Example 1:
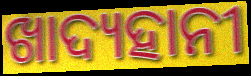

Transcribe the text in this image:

ଖାଦ୍ୟହାନୀ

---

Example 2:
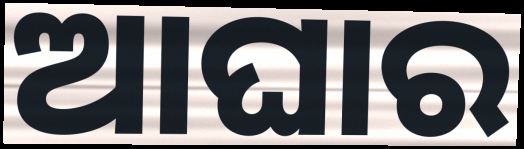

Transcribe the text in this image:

ଆଘାର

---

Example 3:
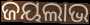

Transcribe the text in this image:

ଜୟଲାଭ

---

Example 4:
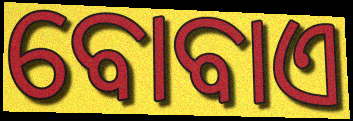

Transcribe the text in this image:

ବୋବାଏ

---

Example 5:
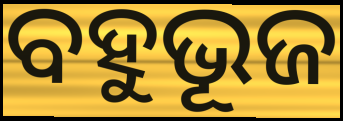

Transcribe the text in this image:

ବହୁଭୂଜ